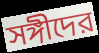
সঙ্গীদের